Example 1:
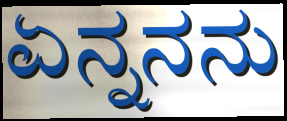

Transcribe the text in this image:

ಏನ್ನನನು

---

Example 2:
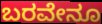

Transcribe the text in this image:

ಬರವೇನೂ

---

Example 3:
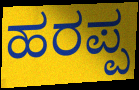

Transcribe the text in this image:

ಹರಪ್ಪ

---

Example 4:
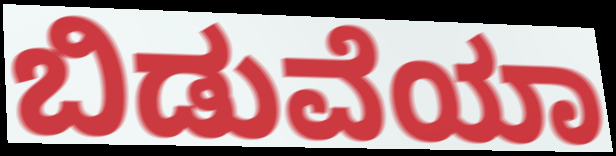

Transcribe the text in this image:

ಬಿಡುವೆಯಾ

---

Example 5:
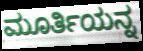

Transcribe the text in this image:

ಮೂರ್ತಿಯನ್ನ